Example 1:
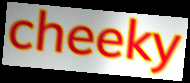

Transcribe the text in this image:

cheeky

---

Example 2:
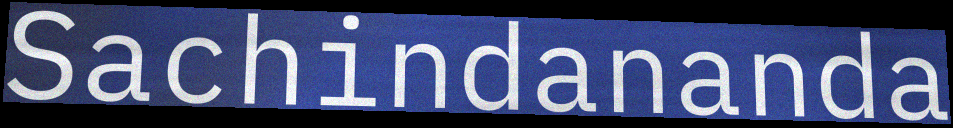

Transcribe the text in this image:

Sachindananda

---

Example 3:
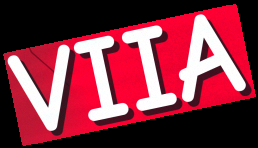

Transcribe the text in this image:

VIIA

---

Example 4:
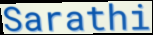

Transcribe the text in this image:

Sarathi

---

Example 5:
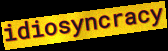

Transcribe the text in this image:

idiosyncracy